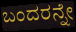
ಬಂದರನ್ನೇ